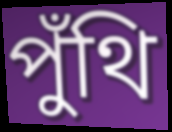
পুঁথি